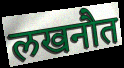
लखनौत